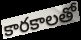
కారకాలతో